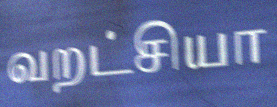
வறட்சியா